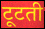
टूटती